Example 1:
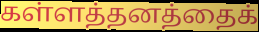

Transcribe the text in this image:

கள்ளத்தனத்தைக்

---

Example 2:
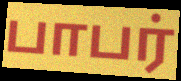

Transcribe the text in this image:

பாபர்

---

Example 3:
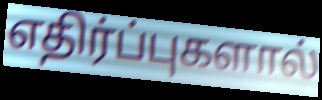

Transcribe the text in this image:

எதிர்ப்புகளால்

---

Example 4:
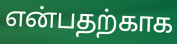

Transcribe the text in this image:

என்பதற்காக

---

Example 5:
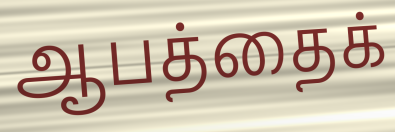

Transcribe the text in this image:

ஆபத்தைக்